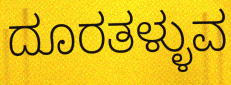
ದೂರತಳ್ಳುವ